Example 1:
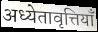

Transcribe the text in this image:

अध्येतावृत्तियाँ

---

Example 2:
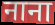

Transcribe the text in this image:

नाना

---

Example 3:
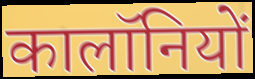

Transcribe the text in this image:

कालॉनियों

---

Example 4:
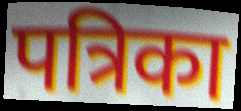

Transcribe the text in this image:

पत्रिका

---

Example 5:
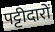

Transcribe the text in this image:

पट्टीदारों